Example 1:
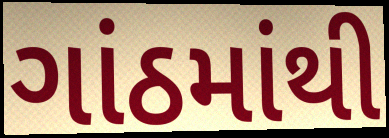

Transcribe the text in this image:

ગાંઠમાંથી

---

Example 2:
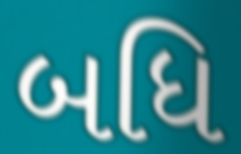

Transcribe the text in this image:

બધિ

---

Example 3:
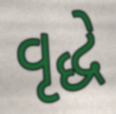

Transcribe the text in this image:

વૃદ્ધે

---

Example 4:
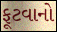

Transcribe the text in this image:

ફૂટવાનો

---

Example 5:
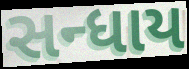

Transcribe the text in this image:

સન્ધાય